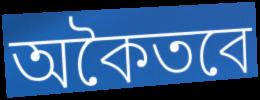
অকৈতবে